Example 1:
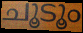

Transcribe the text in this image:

ചൂടൂം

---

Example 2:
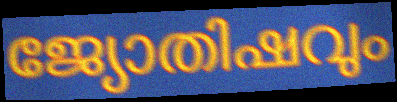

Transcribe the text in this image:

ജ്യോതിഷവും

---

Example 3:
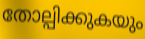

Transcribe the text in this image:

തോല്പിക്കുകയും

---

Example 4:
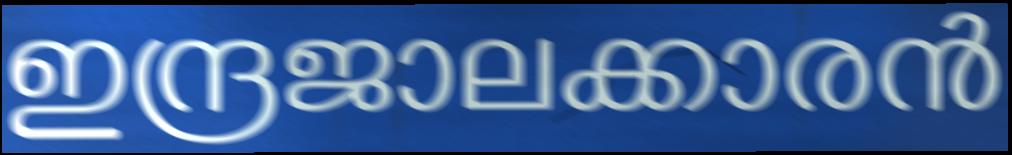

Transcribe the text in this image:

ഇന്ദ്രജാലക്കാരൻ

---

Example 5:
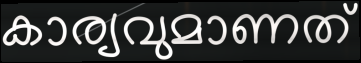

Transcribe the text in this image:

കാര്യവുമാണത്